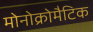
मोनोक्रोमैटिक